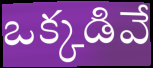
ఒక్కడివే